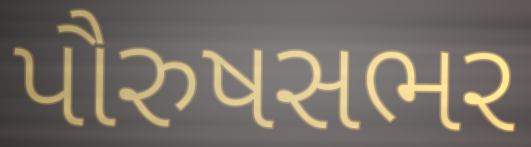
પૌરુષસભર